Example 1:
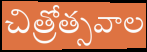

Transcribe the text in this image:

చిత్రోత్సవాల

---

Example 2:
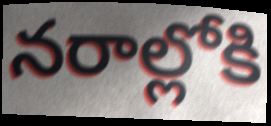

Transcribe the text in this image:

నరాల్లోకి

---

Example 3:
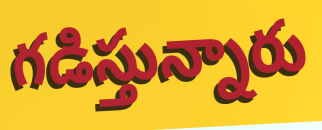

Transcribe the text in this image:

గడిస్తున్నారు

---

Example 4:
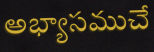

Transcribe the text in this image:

అభ్యాసముచే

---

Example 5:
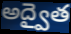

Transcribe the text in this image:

అద్వైత